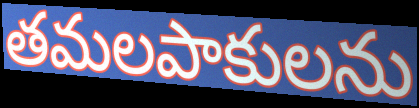
తమలపాకులను